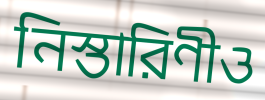
নিস্তারিণীও